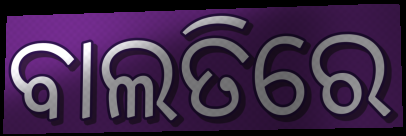
ବାଲତିରେ